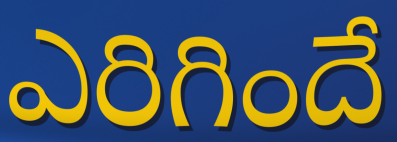
ఎరిగిందే